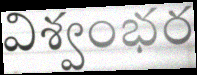
విశ్వంభర